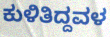
ಕುಳಿತಿದ್ದವಳ